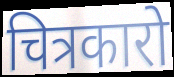
चित्रकारो